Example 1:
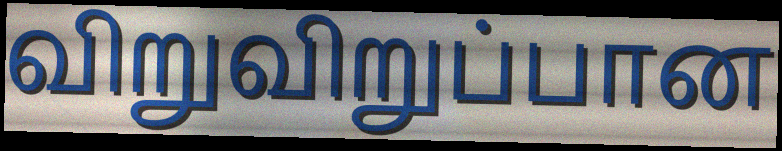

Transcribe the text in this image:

விறுவிறுப்பான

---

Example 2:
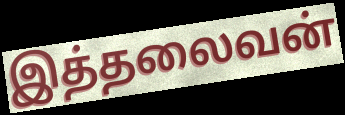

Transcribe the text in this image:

இத்தலைவன்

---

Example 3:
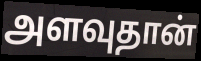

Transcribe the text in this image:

அளவுதான்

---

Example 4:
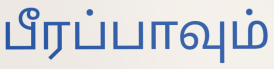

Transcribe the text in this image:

பீரப்பாவும்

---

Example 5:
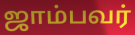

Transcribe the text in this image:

ஜாம்பவர்